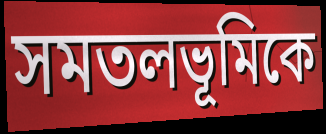
সমতলভূমিকে